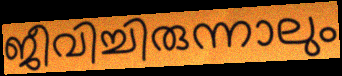
ജീവിച്ചിരുന്നാലും